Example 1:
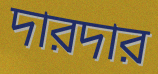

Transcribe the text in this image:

দারদার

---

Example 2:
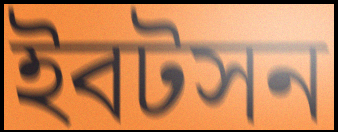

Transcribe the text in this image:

ইবটসন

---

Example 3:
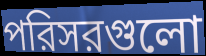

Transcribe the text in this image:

পরিসরগুলো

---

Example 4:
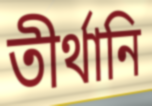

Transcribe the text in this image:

তীর্থানি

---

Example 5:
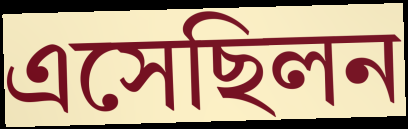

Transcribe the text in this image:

এসেছিলন